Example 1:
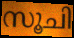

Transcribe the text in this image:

സൂചി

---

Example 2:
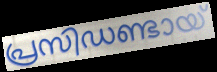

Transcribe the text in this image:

പ്രസിഡണ്ടായ്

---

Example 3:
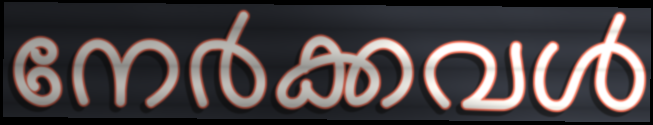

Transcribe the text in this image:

നേർക്കവൾ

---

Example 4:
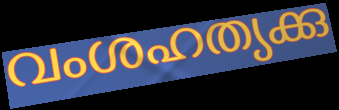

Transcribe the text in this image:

വംശഹത്യക്കു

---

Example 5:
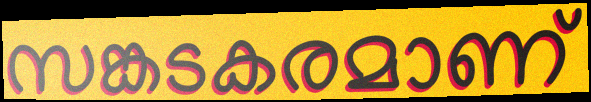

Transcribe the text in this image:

സങ്കടകരമാണ്